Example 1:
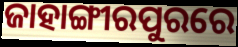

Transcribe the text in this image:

ଜାହାଙ୍ଗୀରପୁରରେ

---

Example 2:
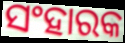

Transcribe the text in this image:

ସଂହାରକ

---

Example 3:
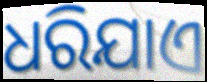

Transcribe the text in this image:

ଧରିଯାଏ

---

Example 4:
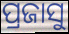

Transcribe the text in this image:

ପ୍ରଜାସୁ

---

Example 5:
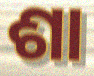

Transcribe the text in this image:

ଶା